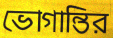
ভোগান্তির